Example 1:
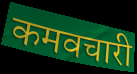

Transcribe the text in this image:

कमवचारी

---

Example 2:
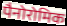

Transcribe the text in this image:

पैनोरोमिक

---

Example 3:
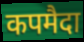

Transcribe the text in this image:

कपमैदा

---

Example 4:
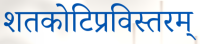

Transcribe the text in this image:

शतकोटिप्रविस्तरम्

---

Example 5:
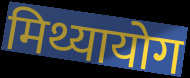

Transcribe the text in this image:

मिथ्यायोग